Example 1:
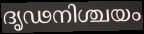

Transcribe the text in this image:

ദൃഢനിശ്ചയം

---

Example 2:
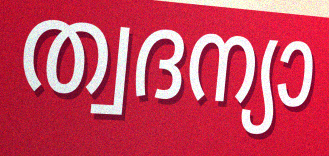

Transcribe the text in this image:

ത്വദന്യാ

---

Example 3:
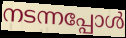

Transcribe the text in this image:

നടന്നപ്പോൾ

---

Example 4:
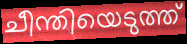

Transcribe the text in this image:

ചീന്തിയെടുത്ത്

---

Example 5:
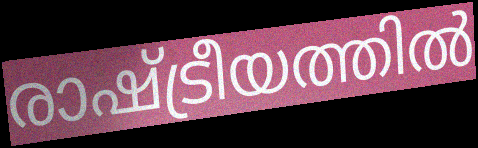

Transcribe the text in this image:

രാഷ്ട്രീയത്തിൽ